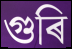
গুৰি